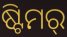
ଷ୍ଟିମର୍